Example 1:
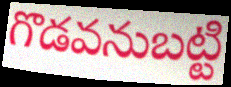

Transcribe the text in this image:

గొడవనుబట్టి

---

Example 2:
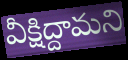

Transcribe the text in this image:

వీక్షిద్దామని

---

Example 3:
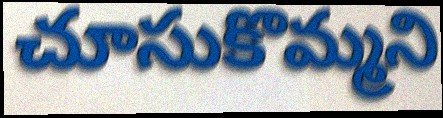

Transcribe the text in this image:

చూసుకొమ్మని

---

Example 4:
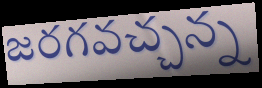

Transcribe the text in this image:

జరగవచ్చన్న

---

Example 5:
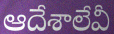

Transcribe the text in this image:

ఆదేశాలేవీ